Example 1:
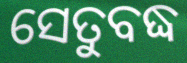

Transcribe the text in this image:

ସେତୁବଦ୍ଧ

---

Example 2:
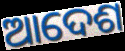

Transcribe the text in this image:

ଆଦେଶ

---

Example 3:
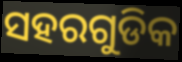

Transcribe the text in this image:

ସହରଗୁଡିକ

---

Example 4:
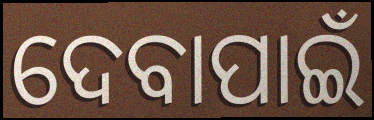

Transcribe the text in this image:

ଦେବାପାଇଁ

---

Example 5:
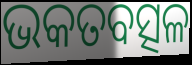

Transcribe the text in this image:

ଭକତବତ୍ସଳ